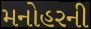
મનોહરની